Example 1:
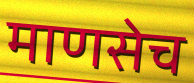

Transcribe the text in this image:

माणसेच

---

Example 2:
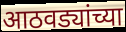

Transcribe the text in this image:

आठवड्यांच्या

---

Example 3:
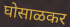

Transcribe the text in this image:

घोसाळकर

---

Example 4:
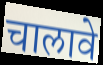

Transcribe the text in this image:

चालावे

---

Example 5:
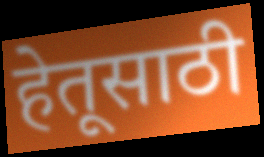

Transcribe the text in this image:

हेतूसाठी